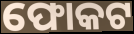
ଫୋକଟ